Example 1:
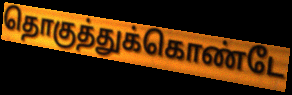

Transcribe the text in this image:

தொகுத்துக்கொண்டே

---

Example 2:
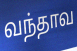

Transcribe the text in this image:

வந்தாவ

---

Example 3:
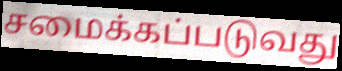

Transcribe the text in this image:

சமைக்கப்படுவது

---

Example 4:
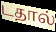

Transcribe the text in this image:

டதால்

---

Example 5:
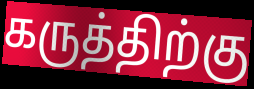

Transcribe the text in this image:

கருத்திற்கு